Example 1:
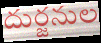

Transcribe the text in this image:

దుర్జనుల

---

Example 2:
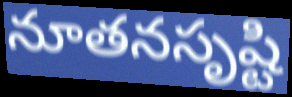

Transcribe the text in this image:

నూతనసృష్టి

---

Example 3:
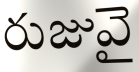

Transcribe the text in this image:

రుజువై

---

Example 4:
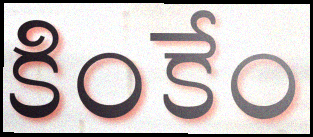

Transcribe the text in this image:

కింకేం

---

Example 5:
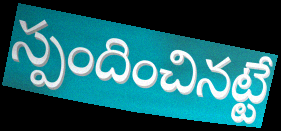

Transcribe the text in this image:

స్పందించినట్టే